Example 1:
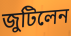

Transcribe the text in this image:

জুটিলেন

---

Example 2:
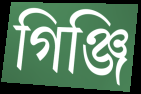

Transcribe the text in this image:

গিঞ্জি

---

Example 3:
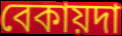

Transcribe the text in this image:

বেকায়দা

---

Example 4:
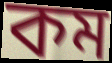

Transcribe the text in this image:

কম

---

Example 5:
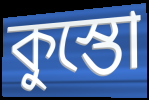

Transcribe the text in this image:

কুস্তো